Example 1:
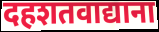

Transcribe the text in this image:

दहशतवाद्याना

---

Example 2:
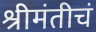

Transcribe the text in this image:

श्रीमंतीचं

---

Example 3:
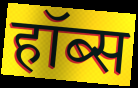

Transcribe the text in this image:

हॉब्स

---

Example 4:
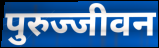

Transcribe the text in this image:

पुरुज्जीवन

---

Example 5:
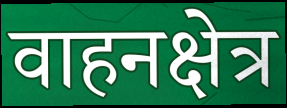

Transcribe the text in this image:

वाहनक्षेत्र